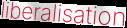
liberalisation